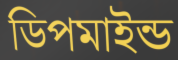
ডিপমাইন্ড